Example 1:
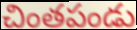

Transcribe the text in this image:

చింతపండు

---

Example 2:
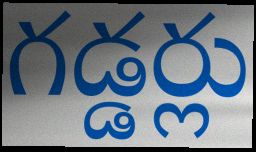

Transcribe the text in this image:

గడ్డర్లు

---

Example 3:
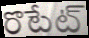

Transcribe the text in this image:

రొటేట్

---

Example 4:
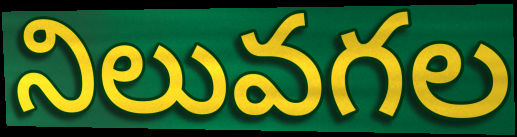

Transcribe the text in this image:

నిలువగల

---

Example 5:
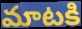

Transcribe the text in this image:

మాటకి